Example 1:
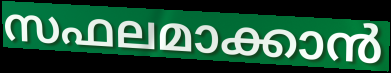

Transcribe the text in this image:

സഫലമാക്കാൻ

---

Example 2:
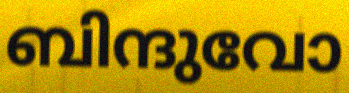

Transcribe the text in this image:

ബിന്ദുവോ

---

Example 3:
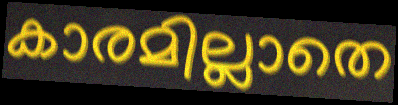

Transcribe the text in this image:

കാരമില്ലാതെ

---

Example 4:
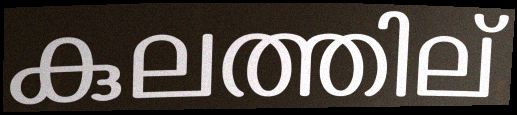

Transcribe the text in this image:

കുലത്തില്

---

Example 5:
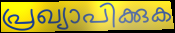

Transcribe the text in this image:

പ്രഖ്യാപിക്കുക